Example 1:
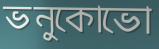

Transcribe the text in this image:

ভনুকোভো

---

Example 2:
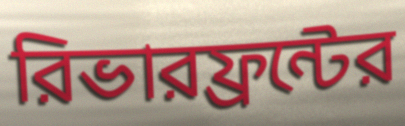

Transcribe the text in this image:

রিভারফ্রন্টের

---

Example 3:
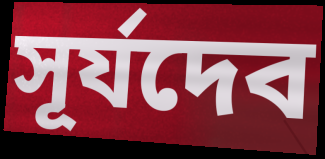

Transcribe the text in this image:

সূর্যদেব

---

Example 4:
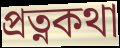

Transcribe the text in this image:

প্রত্নকথা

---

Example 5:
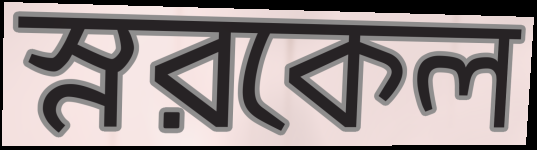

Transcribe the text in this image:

স্নরকেল